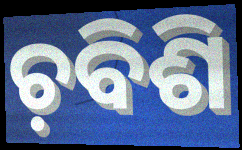
ଚ଼ବିଶି